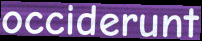
occiderunt